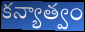
కన్యాత్వం